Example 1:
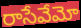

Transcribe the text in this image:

రాసేవేమో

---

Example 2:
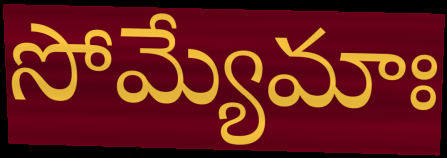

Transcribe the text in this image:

సోమ్యేమాః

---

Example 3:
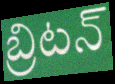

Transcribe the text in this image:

బ్రిటన్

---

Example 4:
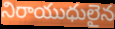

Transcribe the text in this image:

నిరాయుధులైన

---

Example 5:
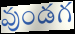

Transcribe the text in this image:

వుండగ